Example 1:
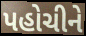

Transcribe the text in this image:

પહોચીને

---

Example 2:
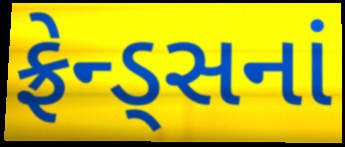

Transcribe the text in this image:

ફ્રેન્ડ્સનાં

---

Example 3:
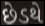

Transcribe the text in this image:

છેડથે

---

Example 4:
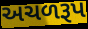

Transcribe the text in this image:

અચળરૂપ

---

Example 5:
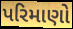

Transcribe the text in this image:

પરિમાણો